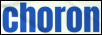
choron